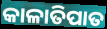
କାଳାତିପାତ